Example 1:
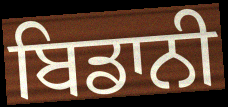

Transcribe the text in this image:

ਬਿਡਾਨੀ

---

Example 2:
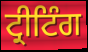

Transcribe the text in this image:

ਟ੍ਰੀਟਿੰਗ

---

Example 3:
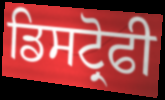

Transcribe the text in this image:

ਡਿਸਟ੍ਰੋਫੀ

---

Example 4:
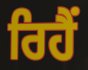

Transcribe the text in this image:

ਰਿਹੈਂ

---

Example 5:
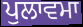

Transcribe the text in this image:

ਪੁਲਾਵਮਾ